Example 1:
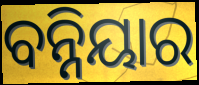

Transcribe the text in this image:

ବନ୍ନିୟାର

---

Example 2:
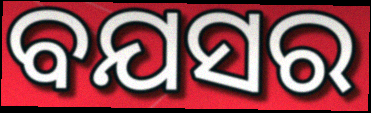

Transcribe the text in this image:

ବଯସର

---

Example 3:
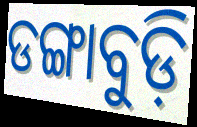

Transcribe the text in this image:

ଡଙ୍ଗାବୁଡ଼ି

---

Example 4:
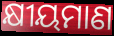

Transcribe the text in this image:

କ୍ଷୀୟମାଣ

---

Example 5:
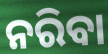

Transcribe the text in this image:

ନରିବା